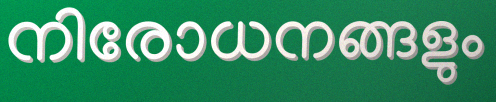
നിരോധനങ്ങളും